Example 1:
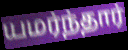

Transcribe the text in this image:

யமர்ந்தார்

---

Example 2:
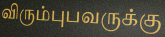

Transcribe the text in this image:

விரும்புபவருக்கு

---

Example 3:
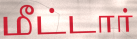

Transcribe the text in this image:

மீட்டார்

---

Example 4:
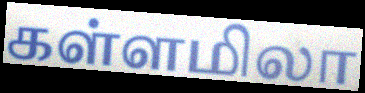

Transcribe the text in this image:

கள்ளமிலா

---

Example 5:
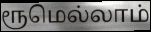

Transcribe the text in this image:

ரூமெல்லாம்